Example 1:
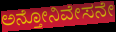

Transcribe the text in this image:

ಅನ್ತೋನಿವೇಸನೇ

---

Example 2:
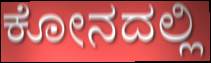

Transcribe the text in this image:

ಕೋನದಲ್ಲಿ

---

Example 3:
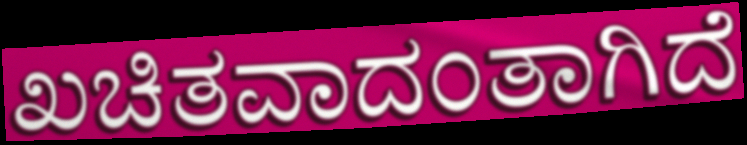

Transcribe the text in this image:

ಖಚಿತವಾದಂತಾಗಿದೆ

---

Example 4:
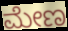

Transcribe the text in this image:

ಮೇಣ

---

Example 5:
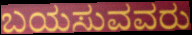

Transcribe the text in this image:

ಬಯಸುವವರು